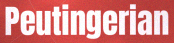
Peutingerian